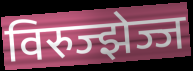
विरुज्झेज्ज